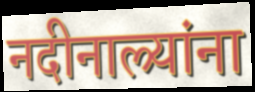
नदीनाल्यांना